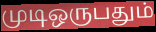
முடிஒருபதும்